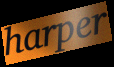
harper